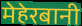
मेहेरबानी